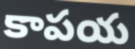
కాపయ